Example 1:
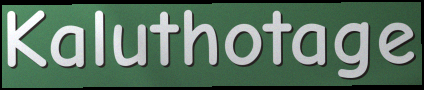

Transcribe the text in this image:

Kaluthotage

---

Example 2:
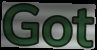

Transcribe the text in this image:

Got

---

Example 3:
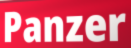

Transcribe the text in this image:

Panzer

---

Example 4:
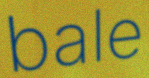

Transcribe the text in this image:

bale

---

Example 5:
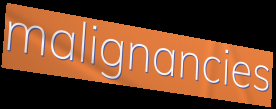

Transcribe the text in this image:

malignancies